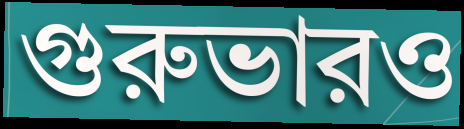
গুরুভারও